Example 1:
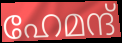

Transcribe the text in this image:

ഹേമന്ദ്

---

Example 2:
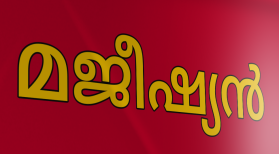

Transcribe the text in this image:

മജീഷ്യൻ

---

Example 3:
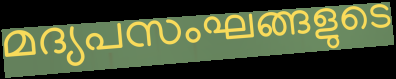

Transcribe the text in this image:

മദ്യപസംഘങ്ങളുടെ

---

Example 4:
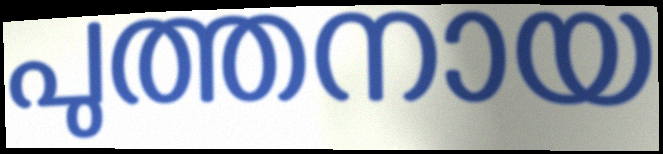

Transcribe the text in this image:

പുത്തനായ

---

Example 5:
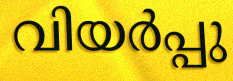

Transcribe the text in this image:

വിയർപ്പു